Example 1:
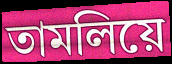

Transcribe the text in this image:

তামলিয়ে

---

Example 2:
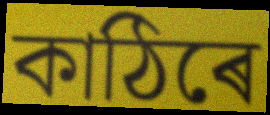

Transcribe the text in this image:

কাঠিৰে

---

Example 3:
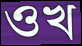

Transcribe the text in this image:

ওখ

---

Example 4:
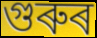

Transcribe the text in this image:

গুৰুৰ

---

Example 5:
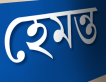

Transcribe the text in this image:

হেমন্ত